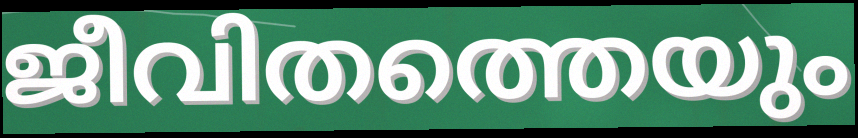
ജീവിതത്തെയും